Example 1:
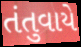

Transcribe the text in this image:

તંતુવાયે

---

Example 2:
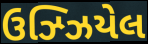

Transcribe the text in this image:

ઉઝ્ઝિયેલ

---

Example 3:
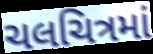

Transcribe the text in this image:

ચલચિત્રમાં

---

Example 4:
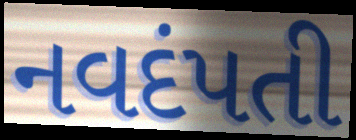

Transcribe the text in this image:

નવદંપતી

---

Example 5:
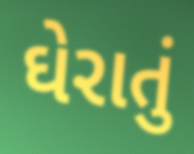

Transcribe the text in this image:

ઘેરાતું